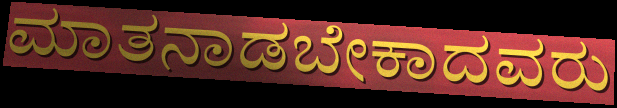
ಮಾತನಾಡಬೇಕಾದವರು